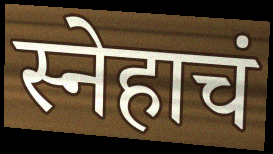
स्नेहाचं